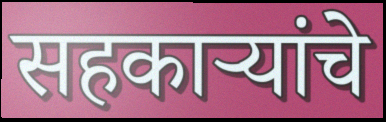
सहकाऱ्यांचे